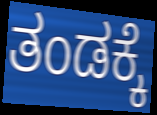
ತಂಡಕ್ಕೆ